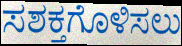
ಸಶಕ್ತಗೊಳಿಸಲು